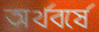
অর্থবর্ষে